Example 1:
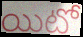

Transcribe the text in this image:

యిటో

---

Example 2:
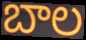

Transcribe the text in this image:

బాల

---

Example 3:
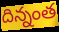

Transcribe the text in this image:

దిన్నంత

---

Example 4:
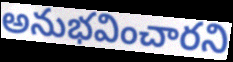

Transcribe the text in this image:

అనుభవించారని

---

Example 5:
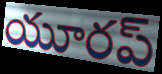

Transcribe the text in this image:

యూరప్